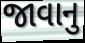
જાવાનુ